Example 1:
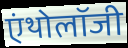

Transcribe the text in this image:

एंथोलॉजी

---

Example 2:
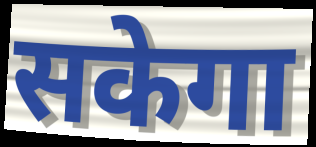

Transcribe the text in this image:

सकेगा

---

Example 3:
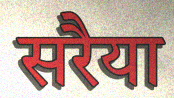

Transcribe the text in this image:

सरैया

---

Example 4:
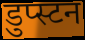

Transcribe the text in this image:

डुप्स्टन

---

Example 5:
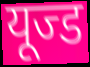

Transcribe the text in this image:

यूज्ड